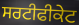
ਸਰਟੀਫੀਕੇਟ